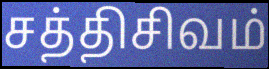
சத்திசிவம்